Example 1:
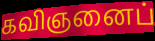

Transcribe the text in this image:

கவிஞனைப்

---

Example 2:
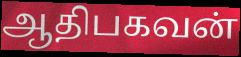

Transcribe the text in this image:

ஆதிபகவன்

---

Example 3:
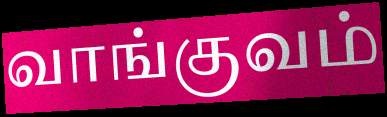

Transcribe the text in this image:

வாங்குவம்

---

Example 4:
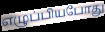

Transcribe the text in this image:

எழுப்பியபோது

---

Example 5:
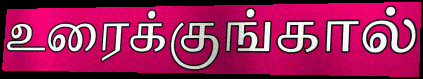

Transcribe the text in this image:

உரைக்குங்கால்